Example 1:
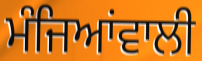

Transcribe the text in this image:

ਮੰਜਿਆਂਵਾਲੀ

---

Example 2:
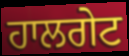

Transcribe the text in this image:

ਹਾਲਗੇਟ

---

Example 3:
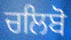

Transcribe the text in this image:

ਚਲਿਬੋ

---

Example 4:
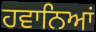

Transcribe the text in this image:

ਹਵਾਨਿਆਂ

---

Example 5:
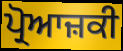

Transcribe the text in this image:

ਪ੍ਰੋਆਜ਼ਕੀ